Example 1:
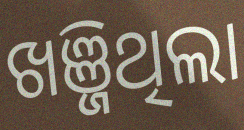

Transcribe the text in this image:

ଖଞ୍ଜିଥିଲା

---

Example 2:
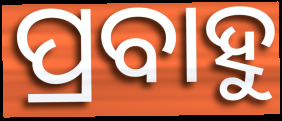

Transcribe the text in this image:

ପ୍ରବାହୁ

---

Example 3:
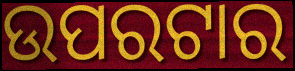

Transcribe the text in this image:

ଉପରଟାର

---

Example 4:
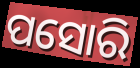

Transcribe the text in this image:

ପସୋରି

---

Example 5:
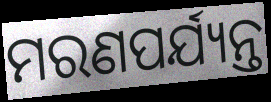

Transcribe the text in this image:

ମରଣପର୍ଯ୍ୟନ୍ତ